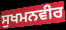
ਸੁਖਮਨਵੀਰ